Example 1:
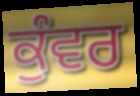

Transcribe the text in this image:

ਕੁੰਵਰ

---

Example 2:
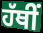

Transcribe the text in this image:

ਹੱਥੀਂ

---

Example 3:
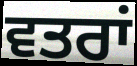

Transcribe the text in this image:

ਵਤਰਾਂ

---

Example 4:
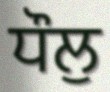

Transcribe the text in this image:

ਧੌਲੁ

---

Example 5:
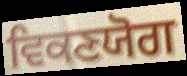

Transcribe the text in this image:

ਵਿਕਣਯੋਗ